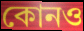
কোনও